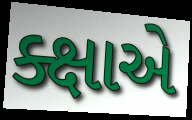
ક્ક્ષાએ